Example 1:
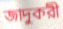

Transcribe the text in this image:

জাদুকরী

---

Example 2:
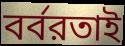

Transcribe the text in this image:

বর্বরতাই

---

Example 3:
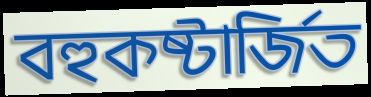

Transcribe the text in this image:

বহুকষ্টার্জিত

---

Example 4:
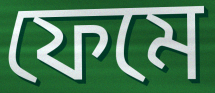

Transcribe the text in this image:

ফেমে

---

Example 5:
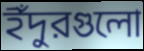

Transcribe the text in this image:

ইঁদুরগুলো